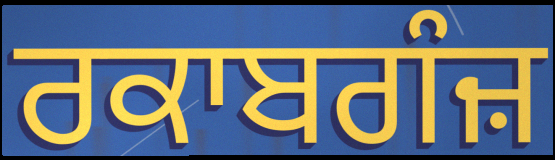
ਰਕਾਬਗੰਜ਼